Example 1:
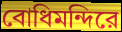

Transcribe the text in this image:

বোধিমন্দিরে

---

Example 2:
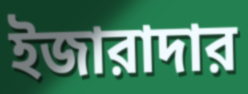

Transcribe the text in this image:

ইজারাদার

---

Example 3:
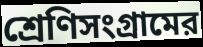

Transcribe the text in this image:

শ্রেণিসংগ্রামের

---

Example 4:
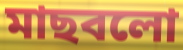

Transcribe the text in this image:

মাছবলো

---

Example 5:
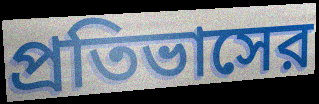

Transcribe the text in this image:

প্রতিভাসের